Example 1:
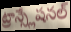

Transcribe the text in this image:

ట్రాన్స్లేషనల్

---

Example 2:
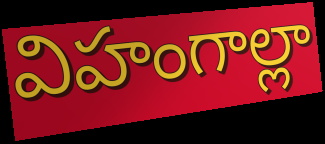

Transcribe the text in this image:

విహంగాల్లా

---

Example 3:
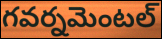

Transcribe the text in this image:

గవర్నమెంటల్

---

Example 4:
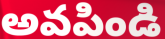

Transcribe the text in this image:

అవపిండి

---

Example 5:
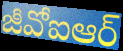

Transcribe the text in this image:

జీవోఐఆర్